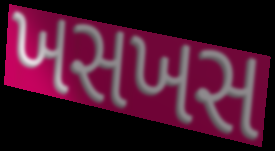
ખસખસ